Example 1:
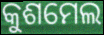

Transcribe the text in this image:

କୁଶମେଲ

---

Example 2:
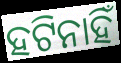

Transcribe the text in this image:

ହଟିନାହିଁ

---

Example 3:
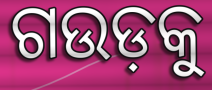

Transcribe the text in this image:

ଗଉଡ଼କୁ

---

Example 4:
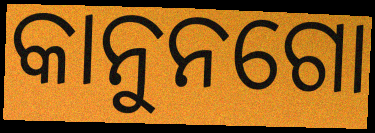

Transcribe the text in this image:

କାନୁନଗୋ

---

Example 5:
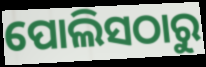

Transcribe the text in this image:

ପୋଲିସଠାରୁ